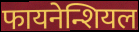
फायनेन्शियल